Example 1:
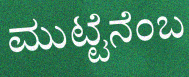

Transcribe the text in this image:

ಮುಟ್ಟೆನೆಂಬ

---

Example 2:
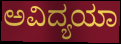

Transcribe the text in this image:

ಅವಿದ್ಯಯಾ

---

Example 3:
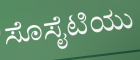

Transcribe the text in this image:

ಸೊಸೈಟಿಯು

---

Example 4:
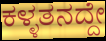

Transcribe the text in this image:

ಕಳ್ಳತನದ್ದೇ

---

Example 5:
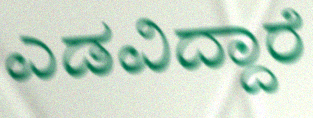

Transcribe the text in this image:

ಎಡವಿದ್ದಾರೆ